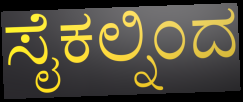
ಸೈಕಲ್ನಿಂದ